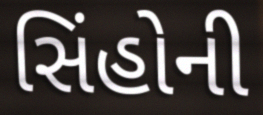
સિંહોની